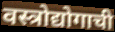
वस्त्रोद्योगाची